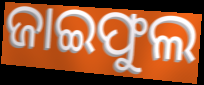
ଜାଇଫୁଲ